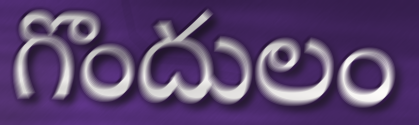
గొందులం